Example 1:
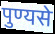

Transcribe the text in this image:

पुण्यसे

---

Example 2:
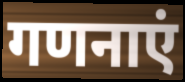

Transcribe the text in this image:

गणनाएं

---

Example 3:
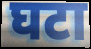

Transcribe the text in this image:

घटा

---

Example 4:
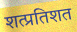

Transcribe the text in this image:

शत्प्रतिशत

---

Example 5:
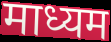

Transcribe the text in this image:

माध्यम